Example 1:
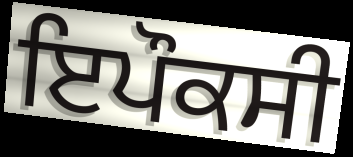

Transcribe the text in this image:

ਇਪੌਕਸੀ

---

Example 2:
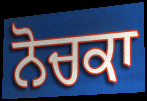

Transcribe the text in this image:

ਨੋਚਕਾ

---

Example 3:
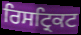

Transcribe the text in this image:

ਰਿਸਟ੍ਰਿਕਟ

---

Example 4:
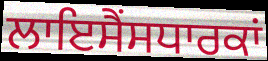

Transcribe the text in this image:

ਲਾਇਸੈਂਸਧਾਰਕਾਂ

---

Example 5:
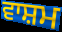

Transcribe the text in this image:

ਵਾਸ਼ਮ